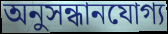
অনুসন্ধানযোগ্য